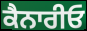
ਕੈਨਾਰੀਓ